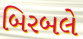
બિરબલે